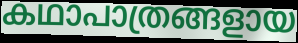
കഥാപാത്രങ്ങളായ